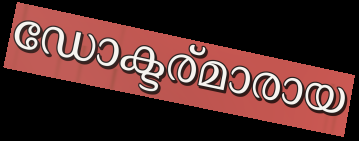
ഡോക്ടര്മാരായ